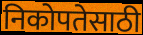
निकोपतेसाठी